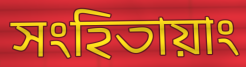
সংহিতায়াং